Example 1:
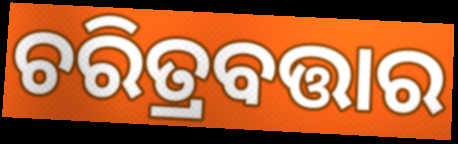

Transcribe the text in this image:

ଚରିତ୍ରବତ୍ତାର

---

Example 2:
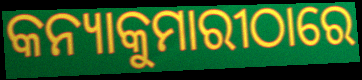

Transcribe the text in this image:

କନ୍ୟାକୁମାରୀଠାରେ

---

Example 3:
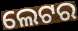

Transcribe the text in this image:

ଲେଟର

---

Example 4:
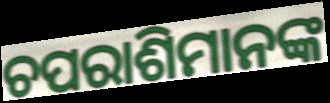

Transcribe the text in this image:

ଚପରାଶିମାନଙ୍କ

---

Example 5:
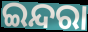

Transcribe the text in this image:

ଇନ୍ଦରା